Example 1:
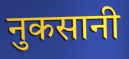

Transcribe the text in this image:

नुकसानी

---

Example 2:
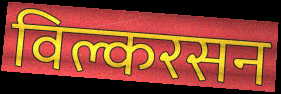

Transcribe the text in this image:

विल्करसन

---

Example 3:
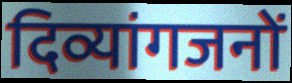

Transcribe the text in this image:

दिव्यांगजनों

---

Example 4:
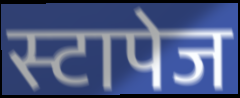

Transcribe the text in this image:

स्टापेज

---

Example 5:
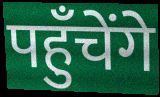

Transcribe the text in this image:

पहुँचेंगे